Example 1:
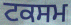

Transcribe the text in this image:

ਟਕਸਮ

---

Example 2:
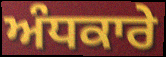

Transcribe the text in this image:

ਅੰਧਕਾਰੇ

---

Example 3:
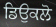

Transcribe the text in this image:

ਡਿਉਕਲੋ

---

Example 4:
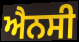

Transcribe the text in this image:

ਐਨਸੀ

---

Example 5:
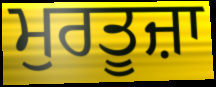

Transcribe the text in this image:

ਮੁਰਤੂਜ਼ਾ